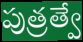
పుత్రత్వే